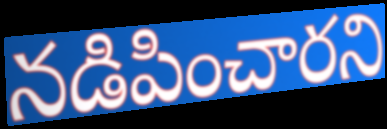
నడిపించారని